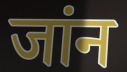
जांन